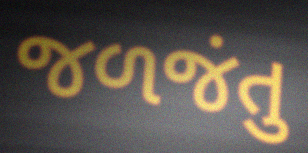
જળજંતુ